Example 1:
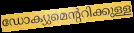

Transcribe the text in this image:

ഡോക്യുമെന്ററിക്കുള്ള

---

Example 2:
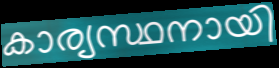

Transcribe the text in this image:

കാര്യസ്ഥനായി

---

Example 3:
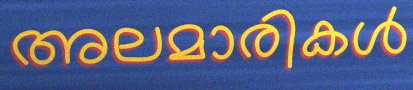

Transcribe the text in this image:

അലമാരികൾ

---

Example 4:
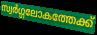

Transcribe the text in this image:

സ്വർഗ്ഗലോകത്തേക്ക്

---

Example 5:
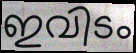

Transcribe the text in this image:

ഇവിടം